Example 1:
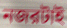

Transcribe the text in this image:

নজরটাই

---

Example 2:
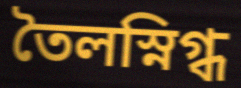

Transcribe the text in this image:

তৈলস্নিগ্ধ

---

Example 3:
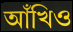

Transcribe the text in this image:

আঁখিও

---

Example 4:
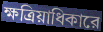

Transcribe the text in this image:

ক্ষত্রিয়াধিকারে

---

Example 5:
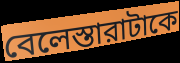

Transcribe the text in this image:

বেলেস্তারাটাকে